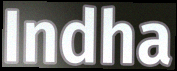
Indha